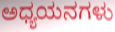
ಅಧ್ಯಯನಗಳು